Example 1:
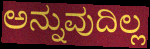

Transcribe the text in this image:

ಅನ್ನುವುದಿಲ್ಲ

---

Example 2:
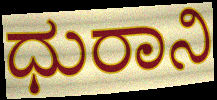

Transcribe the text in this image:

ಧುರಾನಿ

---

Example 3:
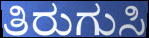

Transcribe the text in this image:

ತಿರುಗುಸಿ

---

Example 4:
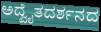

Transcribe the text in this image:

ಅದ್ವೈತದರ್ಶನದ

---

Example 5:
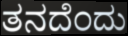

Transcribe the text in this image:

ತನದೆಂದು